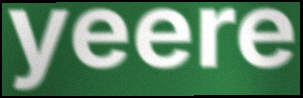
yeere